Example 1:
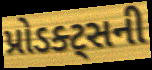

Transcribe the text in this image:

પ્રોડક્ટ્સની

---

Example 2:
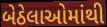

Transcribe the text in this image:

બેઠેલાઓમાંથી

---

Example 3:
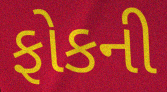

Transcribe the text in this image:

ફોકની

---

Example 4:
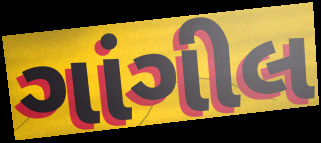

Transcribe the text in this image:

ગાંગીલ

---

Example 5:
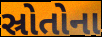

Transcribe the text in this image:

સ્રોતોના